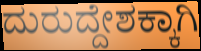
ದುರುದ್ದೇಶಕ್ಕಾಗಿ